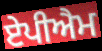
ਏਪੀਐਮ